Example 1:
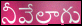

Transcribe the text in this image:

నీవేలాగు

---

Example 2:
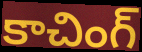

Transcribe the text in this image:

కాచింగ్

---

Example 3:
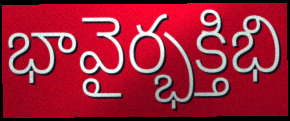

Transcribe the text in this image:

భావైర్భక్తిభి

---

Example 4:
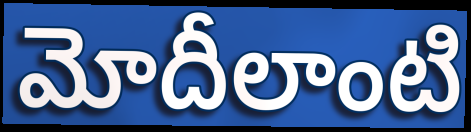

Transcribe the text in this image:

మోదీలాంటి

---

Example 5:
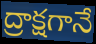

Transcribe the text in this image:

ద్రాక్షగానే